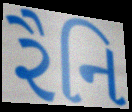
રૈનિ